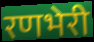
रणभेरी